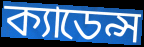
ক্যাডেন্স